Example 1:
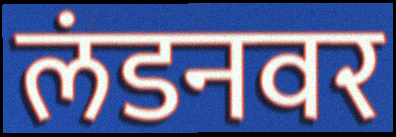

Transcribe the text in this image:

लंडनवर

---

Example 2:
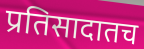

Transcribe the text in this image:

प्रतिसादातच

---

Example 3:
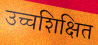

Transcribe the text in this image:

उच्चशिक्षित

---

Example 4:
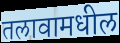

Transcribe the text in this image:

तलावामधील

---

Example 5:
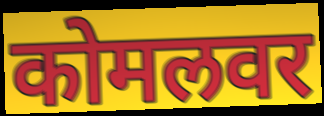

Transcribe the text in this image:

कोमलवर